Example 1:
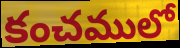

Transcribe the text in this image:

కంచములో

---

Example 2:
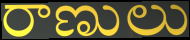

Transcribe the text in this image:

రాణులు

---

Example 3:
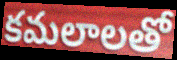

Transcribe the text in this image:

కమలాలతో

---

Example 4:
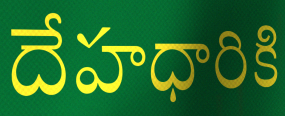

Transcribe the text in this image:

దేహధారికి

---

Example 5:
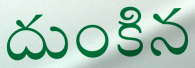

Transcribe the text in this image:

దుంకిన